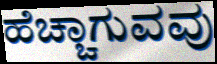
ಹೆಚ್ಚಾಗುವವು